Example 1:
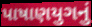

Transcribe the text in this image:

પાષાણયુગનું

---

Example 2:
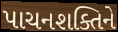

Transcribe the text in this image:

પાચનશક્તિને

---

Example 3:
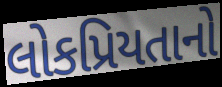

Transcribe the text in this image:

લોકપ્રિયતાનો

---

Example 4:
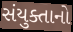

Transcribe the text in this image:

સંયુક્તાનો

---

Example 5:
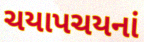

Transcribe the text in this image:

ચયાપચયનાં